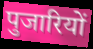
पुजारियों